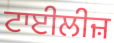
ਟਾਈਲੀਜ਼